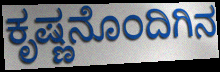
ಕೃಷ್ಣನೊಂದಿಗಿನ